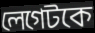
লেগেটকে